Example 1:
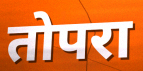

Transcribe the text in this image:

तोपरा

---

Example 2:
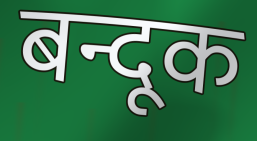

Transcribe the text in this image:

बन्दूक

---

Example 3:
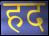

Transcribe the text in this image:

हद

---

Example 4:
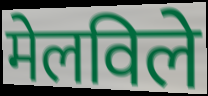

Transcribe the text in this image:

मेलविले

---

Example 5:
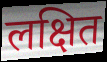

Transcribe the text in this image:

लक्षित